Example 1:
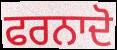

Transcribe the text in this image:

ਫਰਨਾਦੋ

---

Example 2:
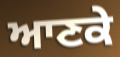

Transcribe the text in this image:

ਆਣਕੇ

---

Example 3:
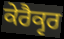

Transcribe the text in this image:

ਕੇਰੈਕ੍ਟਰ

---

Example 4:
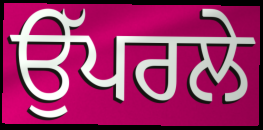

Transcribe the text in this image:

ਉੱਪਰਲੇ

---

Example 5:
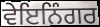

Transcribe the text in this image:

ਵੇਇਨਿੰਗਰ